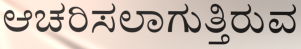
ಆಚರಿಸಲಾಗುತ್ತಿರುವ